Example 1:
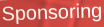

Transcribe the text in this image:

Sponsoring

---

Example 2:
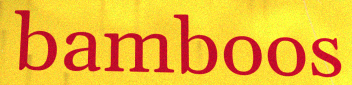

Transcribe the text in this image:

bamboos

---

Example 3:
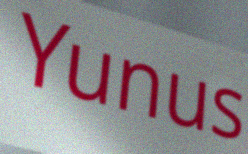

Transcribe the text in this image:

Yunus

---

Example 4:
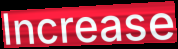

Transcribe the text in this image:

Increase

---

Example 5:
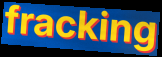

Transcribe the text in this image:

fracking